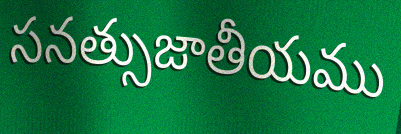
సనత్సుజాతీయము